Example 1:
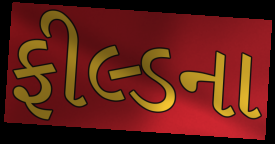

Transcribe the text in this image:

ફીલ્ડના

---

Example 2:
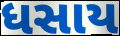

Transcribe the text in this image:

ધસાય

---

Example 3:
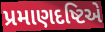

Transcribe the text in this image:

પ્રમાણદષ્ટિએ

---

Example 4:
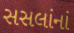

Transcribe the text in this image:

સસલાંનાં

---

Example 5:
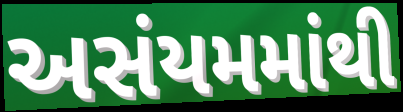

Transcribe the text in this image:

અસંયમમાંથી